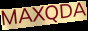
MAXQDA